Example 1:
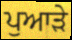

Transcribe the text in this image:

ਪੁਆੜੇ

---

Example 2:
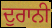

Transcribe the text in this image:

ਦੁਰਾਨੀ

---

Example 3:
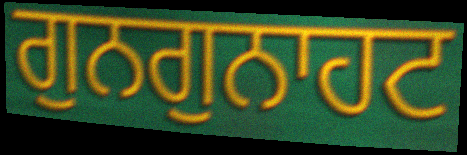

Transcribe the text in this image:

ਗੁਨਗੁਨਾਹਟ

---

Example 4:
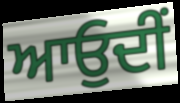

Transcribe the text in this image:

ਆਓੁਦੀਂ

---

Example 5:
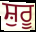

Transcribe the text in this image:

ਸ਼ੁਰੂ